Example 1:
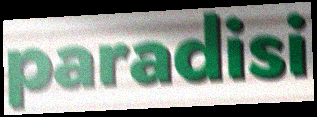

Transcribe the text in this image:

paradisi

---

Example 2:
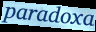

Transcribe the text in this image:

paradoxa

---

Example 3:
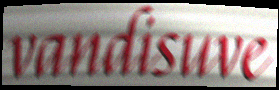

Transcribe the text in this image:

vandisuve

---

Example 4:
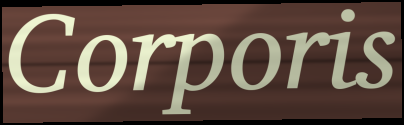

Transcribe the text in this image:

Corporis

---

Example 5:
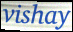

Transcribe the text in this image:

vishay